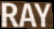
RAY